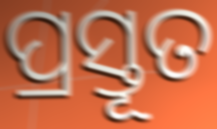
ପ୍ରସ୍ତୂତ